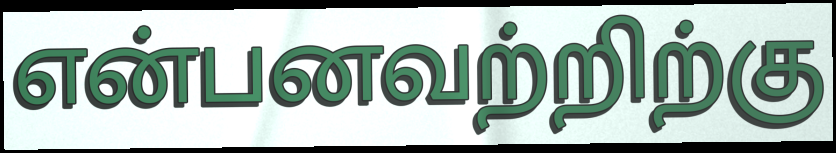
என்பனவற்றிற்கு